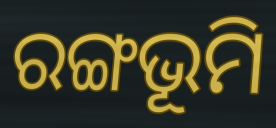
ରଙ୍ଗଭୂମି